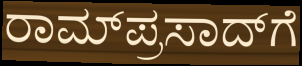
ರಾಮ್‌ಪ್ರಸಾದ್‌ಗೆ